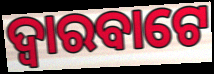
ଦ୍ୱାରବାଟେ